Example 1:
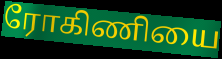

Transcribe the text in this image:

ரோகிணியை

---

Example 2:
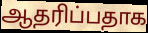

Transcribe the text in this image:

ஆதரிப்பதாக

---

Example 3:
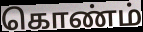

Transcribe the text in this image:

கொண்ம்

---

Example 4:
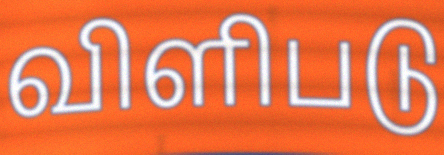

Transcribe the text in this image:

விளிபடு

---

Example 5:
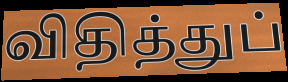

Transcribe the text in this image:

விதித்துப்